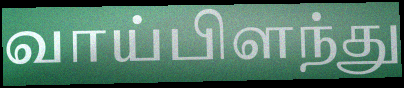
வாய்பிளந்து